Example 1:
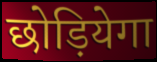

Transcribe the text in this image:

छोड़ियेगा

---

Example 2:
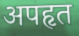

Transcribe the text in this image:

अपहृत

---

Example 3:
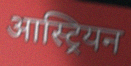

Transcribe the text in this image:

आस्ट्रियन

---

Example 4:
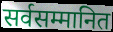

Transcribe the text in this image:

सर्वसम्मानित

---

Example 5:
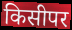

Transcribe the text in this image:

किसीपर